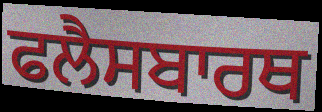
ਫਲੈਸਬਾਰਥ